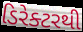
ડિરેક્ટરથી